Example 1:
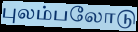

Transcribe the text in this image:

புலம்பலோடு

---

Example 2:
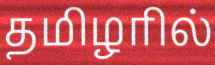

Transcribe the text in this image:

தமிழரில்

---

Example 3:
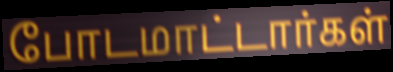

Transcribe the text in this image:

போடமாட்டார்கள்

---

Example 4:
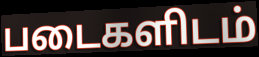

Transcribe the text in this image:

படைகளிடம்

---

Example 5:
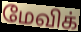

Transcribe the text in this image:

மேவிக்